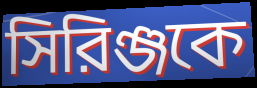
সিরিঞ্জকে